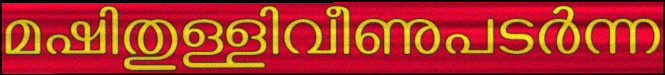
മഷിതുള്ളിവീണുപടർന്ന